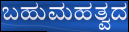
ಬಹುಮಹತ್ವದ